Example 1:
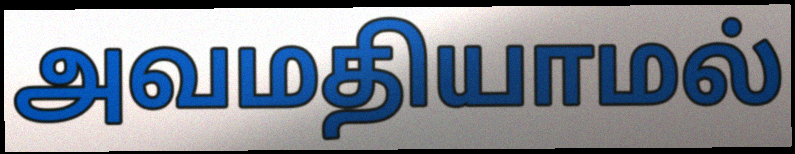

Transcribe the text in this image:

அவமதியாமல்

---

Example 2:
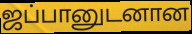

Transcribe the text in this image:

ஜப்பானுடனான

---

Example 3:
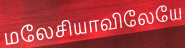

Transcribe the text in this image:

மலேசியாவிலேயே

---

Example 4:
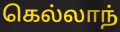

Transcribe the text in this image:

கெல்லாந்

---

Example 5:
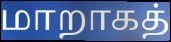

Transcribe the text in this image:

மாறாகத்